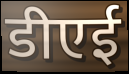
डीएई